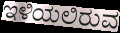
ಇಳಿಯಲಿರುವ